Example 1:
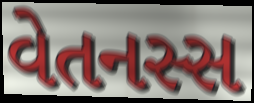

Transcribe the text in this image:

વેતનસ્સ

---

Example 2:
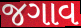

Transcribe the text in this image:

જગાવ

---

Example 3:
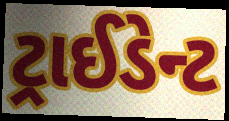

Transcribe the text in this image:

ટ્રાઈડેન્ટ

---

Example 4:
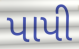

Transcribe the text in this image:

પાપી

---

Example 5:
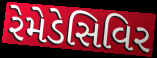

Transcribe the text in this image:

રેમેડેસિવિર